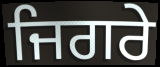
ਜਿਗਰੇ